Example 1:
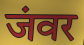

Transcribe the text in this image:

जंवर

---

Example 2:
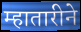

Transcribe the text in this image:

म्हातारीने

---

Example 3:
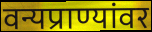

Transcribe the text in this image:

वन्यप्राण्यांवर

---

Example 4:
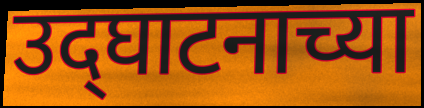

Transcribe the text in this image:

उद्घाटनाच्या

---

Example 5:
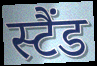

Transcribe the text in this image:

स्टैंड